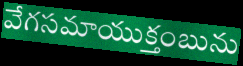
వేగసమాయుక్తంబును